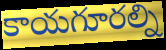
కాయగూరల్ని